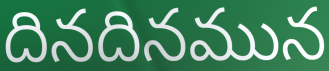
దినదినమున